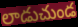
లాడుచుండ